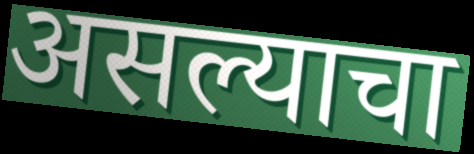
असल्‍याचा